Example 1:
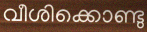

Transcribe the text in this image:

വീശിക്കൊണ്ടു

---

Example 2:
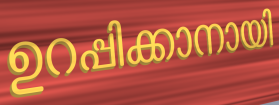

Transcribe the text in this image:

ഉറപ്പിക്കാനായി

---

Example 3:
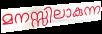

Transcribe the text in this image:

മനസ്സിലാകുന്ന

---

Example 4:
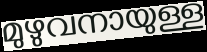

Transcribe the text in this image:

മുഴുവനായുള്ള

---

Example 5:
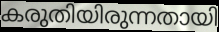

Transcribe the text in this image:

കരുതിയിരുന്നതായി